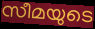
സീമയുടെ